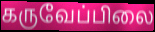
கருவேப்பிலை